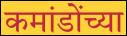
कमांडोंच्या